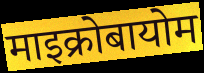
माइक्रोबायोम